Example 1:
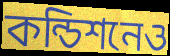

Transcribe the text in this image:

কন্ডিশনেও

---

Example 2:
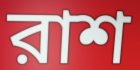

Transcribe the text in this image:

রাশ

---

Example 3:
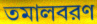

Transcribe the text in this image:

তমালবরণ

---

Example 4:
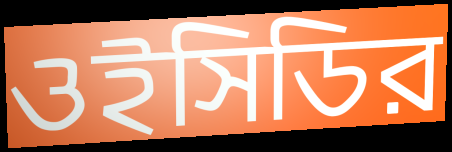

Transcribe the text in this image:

ওইসিডির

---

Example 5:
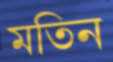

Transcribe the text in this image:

মতিন